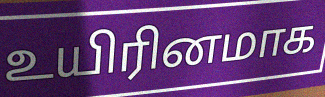
உயிரினமாக